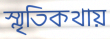
স্মৃতিকথায়